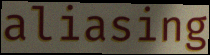
aliasing